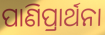
ପାଣିପ୍ରାର୍ଥନା